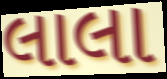
લાલા